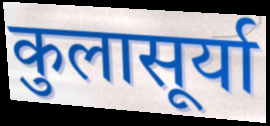
कुलासूर्या